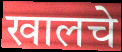
खालचे